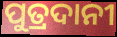
ପୁତ୍ରଦାନୀ